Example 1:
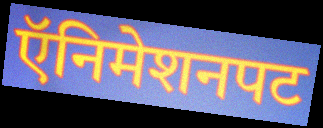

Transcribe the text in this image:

ऍनिमेशनपट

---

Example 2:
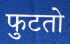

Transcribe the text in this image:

फुटतो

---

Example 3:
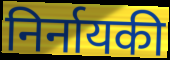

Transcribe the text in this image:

निर्नायकी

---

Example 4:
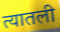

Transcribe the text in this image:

त्यातली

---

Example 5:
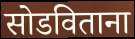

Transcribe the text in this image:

सोडविताना